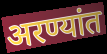
अरण्यांत